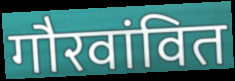
गौरवांवित